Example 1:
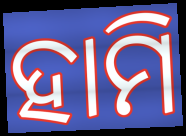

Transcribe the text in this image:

ହାମି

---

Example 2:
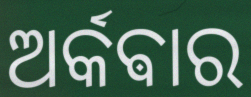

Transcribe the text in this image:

ଅର୍କଵାର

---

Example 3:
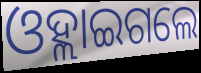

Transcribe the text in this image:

ଓହ୍ଲାଇଗଲେ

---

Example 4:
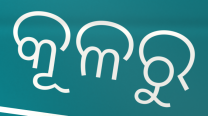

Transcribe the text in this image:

କୂଳରୁ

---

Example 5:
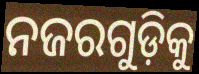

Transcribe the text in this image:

ନଜରଗୁଡ଼ିକୁ